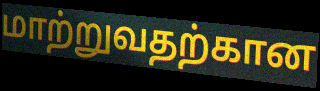
மாற்றுவதற்கான